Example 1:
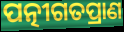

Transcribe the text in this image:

ପତ୍ନୀଗତପ୍ରାଣ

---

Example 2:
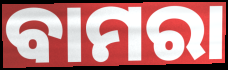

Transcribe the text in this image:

ବାମରା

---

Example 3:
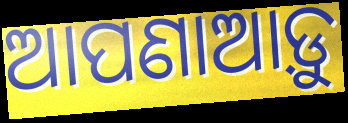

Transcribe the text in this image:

ଆପଣାଆଡ଼ୁ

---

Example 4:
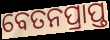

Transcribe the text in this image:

ବେତନପ୍ରାପ୍ତ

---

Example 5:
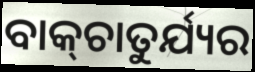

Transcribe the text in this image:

ବାକ୍‍ଚାତୁର୍ଯ୍ୟର